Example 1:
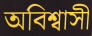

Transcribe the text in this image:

অবিশ্বাসী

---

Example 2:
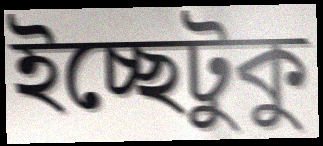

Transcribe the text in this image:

ইচ্ছেটুকু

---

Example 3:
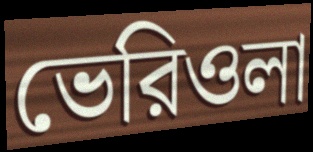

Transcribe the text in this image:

ভেরিওলা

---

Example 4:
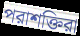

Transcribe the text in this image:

পরাশক্তিরা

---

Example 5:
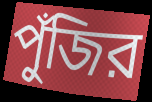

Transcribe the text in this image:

পুঁজির